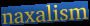
naxalism